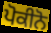
ਪੋਕੀਨੋ